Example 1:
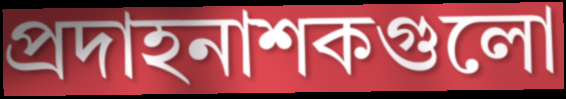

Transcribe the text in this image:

প্রদাহনাশকগুলো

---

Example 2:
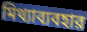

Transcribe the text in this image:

মিথ্যাব্যবহার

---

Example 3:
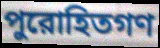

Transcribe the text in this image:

পুরোহিতগণ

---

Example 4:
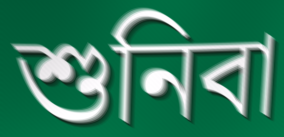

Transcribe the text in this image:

শুনিবা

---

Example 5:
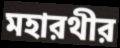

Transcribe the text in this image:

মহারথীর